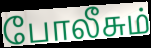
போலீசும்